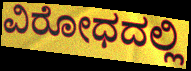
ವಿರೋಧದಲ್ಲಿ